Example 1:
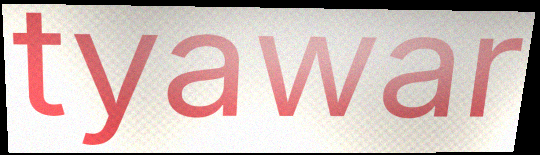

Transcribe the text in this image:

tyawar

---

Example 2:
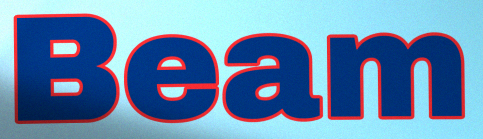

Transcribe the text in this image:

Beam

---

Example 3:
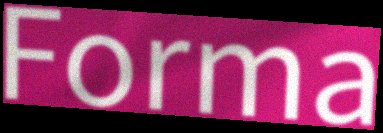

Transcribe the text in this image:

Forma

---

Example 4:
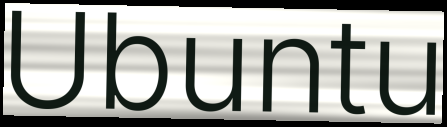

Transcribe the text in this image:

Ubuntu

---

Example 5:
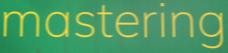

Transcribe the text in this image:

mastering